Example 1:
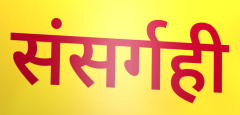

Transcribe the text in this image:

संसर्गही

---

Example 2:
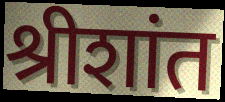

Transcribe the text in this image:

श्रीशांत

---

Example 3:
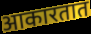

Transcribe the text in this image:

आकारतात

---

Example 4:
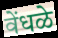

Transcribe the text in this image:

वेंधळे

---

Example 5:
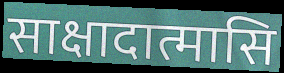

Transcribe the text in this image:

साक्षादात्मासि